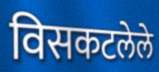
विसकटलेले